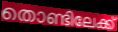
തൊണ്ടിലേക്ക്